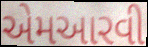
એમઆરવી